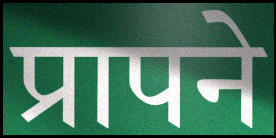
प्रापने